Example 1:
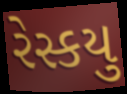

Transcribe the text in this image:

રેસ્કયુ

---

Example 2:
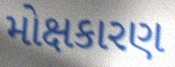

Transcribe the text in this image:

મોક્ષકારણ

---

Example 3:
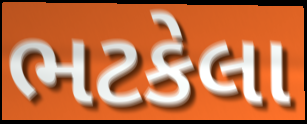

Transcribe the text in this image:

ભટકેલા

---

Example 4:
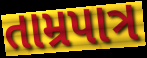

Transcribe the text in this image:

તામ્રપાત્ર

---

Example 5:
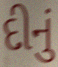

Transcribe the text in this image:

દીનું